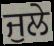
ਜੁਲੇ